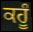
ਕਹੂੰ